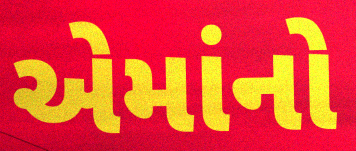
એમાંનો